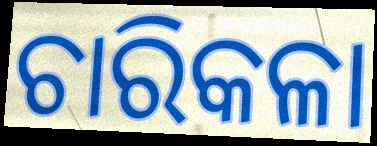
ଚାରିକଳା